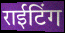
राईटिंग